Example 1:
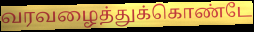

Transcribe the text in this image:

வரவழைத்துக்கொண்டே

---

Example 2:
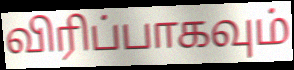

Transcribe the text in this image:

விரிப்பாகவும்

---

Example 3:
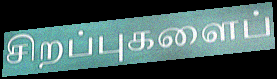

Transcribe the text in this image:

சிறப்புகளைப்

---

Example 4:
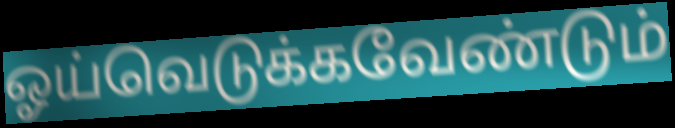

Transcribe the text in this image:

ஓய்வெடுக்கவேண்டும்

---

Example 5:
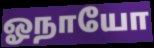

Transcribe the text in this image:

ஓநாயோ